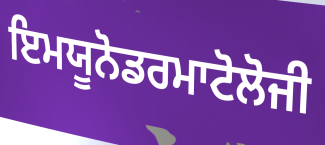
ਇਮਯੂਨੋਡਰਮਾਟੋਲੋਜੀ